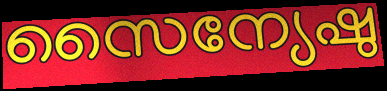
സൈന്യേഷു